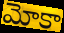
మోకా